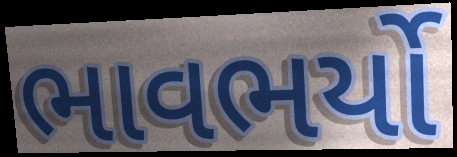
ભાવભર્યો